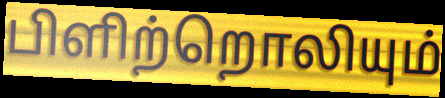
பிளிற்றொலியும்